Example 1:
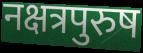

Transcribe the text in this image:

नक्षत्रपुरुष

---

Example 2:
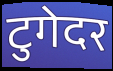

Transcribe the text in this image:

टुगेदर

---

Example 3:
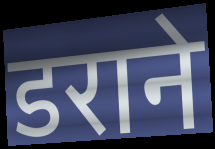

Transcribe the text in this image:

डराने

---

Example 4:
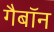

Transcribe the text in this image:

गैबॉन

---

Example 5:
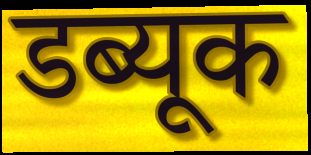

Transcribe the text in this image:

डब्यूक